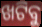
ଖଟିବୁ